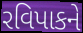
રવિપાકને